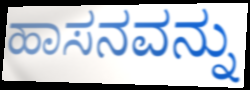
ಹಾಸನವನ್ನು